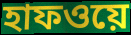
হাফওয়ে